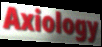
Axiology